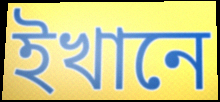
ইখানে